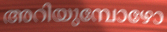
അറിയുമ്പോഴോ